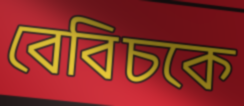
বেবিচকে